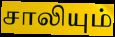
சாலியும்